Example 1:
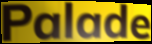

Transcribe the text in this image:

Palade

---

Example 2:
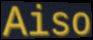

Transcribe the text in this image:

Aiso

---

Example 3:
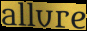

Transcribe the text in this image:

allure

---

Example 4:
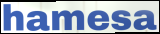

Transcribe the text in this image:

hamesa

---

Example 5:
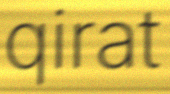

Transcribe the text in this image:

qirat